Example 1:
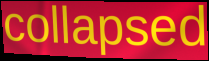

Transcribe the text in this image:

collapsed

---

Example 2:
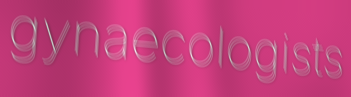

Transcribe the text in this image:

gynaecologists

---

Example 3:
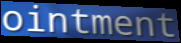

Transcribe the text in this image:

ointment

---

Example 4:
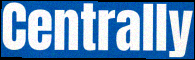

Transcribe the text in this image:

Centrally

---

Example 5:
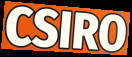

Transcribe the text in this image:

CSIRO